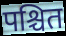
पश्चित